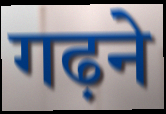
गढ़ने